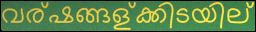
വര്ഷങ്ങള്ക്കിടയില്